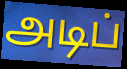
அடிப்